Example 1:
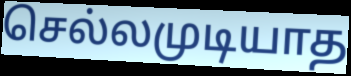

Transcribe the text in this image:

செல்லமுடியாத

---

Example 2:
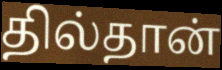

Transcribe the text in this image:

தில்தான்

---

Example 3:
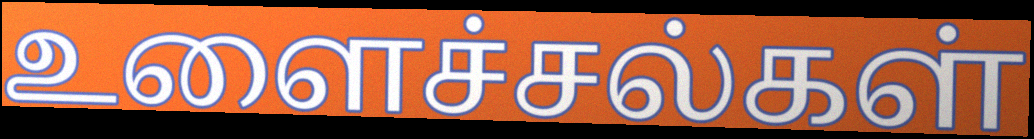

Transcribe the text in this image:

உளைச்சல்கள்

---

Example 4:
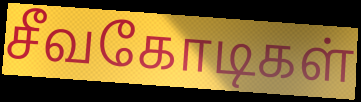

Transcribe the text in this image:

சீவகோடிகள்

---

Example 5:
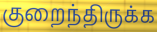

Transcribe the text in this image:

குறைந்திருக்க